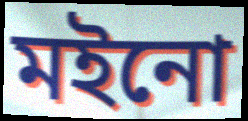
মইনো